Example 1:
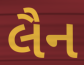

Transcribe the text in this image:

લૈન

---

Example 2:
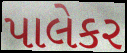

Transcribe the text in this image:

પાલેકર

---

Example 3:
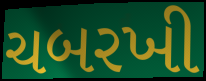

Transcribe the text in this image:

ચબરખી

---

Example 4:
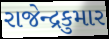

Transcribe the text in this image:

રાજેન્દ્રકુમાર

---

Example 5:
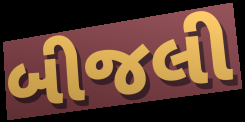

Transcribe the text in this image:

બીજલી